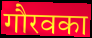
गौरवका